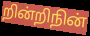
றின்றிநின்